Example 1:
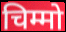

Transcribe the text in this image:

चिम्मो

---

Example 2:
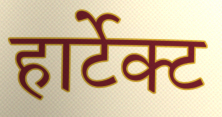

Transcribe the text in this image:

हार्टेक्ट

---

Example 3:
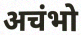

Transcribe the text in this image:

अचंभो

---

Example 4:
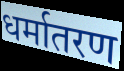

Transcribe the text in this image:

धर्मातरण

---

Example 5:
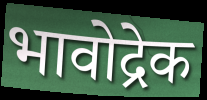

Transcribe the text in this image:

भावोद्रेक